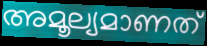
അമൂല്യമാണത്